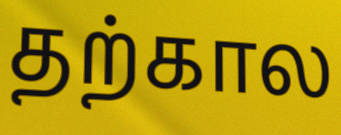
தற்கால